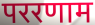
पररणाम